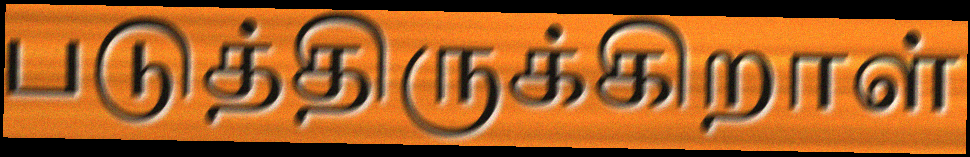
படுத்திருக்கிறாள்